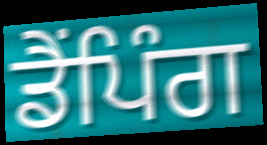
ਡੈਂਪਿੰਗ